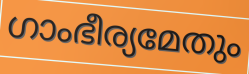
ഗാംഭീര്യമേതും